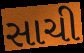
સાચી